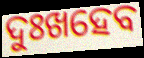
ଦୁଃଖହେବ